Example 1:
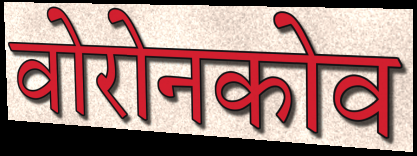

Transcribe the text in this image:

वोरोनकोव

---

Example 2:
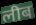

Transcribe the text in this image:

लीब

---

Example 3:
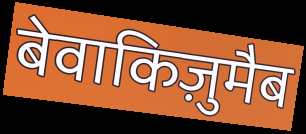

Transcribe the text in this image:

बेवाकिज़ुमैब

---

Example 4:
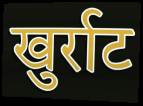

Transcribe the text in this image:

खुर्राट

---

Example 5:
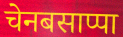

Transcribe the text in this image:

चेनबसाप्पा